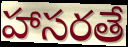
హాసరతే